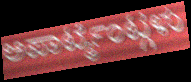
ಅಪಾರ್ಟ್ಮೆಂಟ್ಗಳು